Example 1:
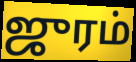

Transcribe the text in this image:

ஜுரம்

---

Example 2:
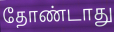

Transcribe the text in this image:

தோண்டாது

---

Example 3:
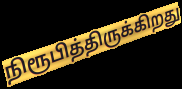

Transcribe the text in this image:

நிரூபித்திருக்கிறது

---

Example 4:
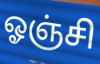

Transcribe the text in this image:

ஓஞ்சி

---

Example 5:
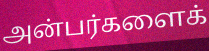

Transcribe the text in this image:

அன்பர்களைக்